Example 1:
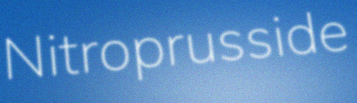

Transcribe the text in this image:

Nitroprusside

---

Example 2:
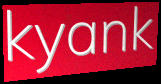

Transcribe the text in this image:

kyank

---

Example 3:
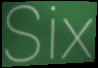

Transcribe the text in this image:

Six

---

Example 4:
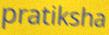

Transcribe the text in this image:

pratiksha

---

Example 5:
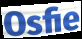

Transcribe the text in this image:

Osfie